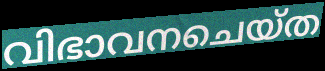
വിഭാവനചെയ്ത